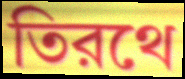
তিরথে